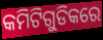
କମିଟିଗୁଡିକରେ